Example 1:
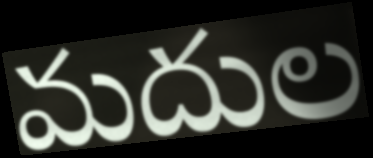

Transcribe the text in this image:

మదుల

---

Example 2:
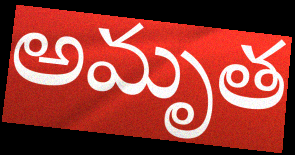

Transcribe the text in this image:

అమృత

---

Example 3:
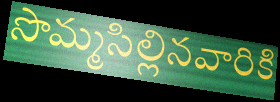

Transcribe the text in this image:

సొమ్మసిల్లినవారికి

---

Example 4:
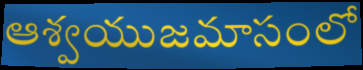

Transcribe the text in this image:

ఆశ్వయుజమాసంలో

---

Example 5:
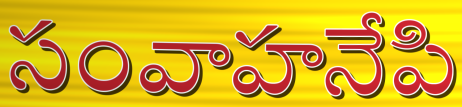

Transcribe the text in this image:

సంవాహనేపి